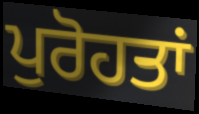
ਪੁਰੋਹਤਾਂ